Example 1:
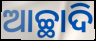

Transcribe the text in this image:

ଆଚ୍ଛାଦି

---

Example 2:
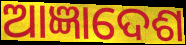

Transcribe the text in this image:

ଆଜ୍ଞାଦେଶ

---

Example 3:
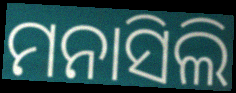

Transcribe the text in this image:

ମନାସିଲି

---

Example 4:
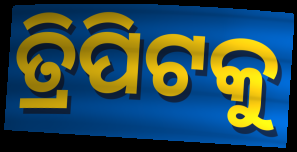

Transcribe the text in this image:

ତ୍ରିପିଟକୁ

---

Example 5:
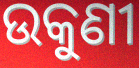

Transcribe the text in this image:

ଉକୁଣୀ